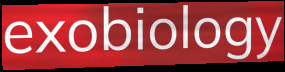
exobiology